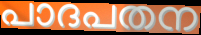
പാദപതന